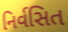
નિર્વસિત